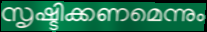
സൃഷ്ടിക്കണമെന്നും